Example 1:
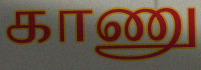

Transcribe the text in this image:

காணு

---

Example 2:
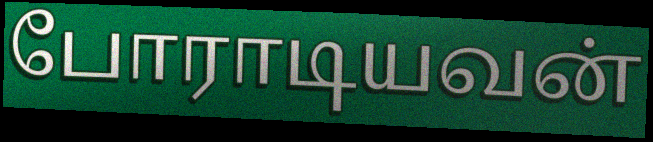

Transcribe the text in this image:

போராடியவன்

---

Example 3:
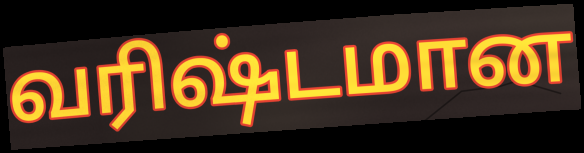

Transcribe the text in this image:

வரிஷ்டமான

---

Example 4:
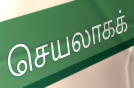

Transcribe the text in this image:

செயலாகக்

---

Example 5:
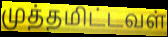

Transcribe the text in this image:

முத்தமிட்டவள்